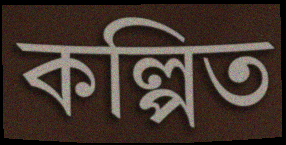
কল্পিত